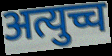
अत्युच्च